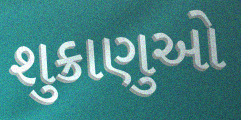
શુક્રાણુઓ